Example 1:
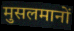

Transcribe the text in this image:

मुसलमानों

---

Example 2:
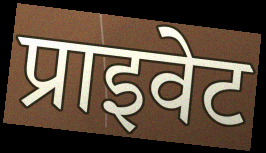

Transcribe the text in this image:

प्राइवेट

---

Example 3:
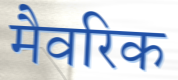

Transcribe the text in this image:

मैवरिक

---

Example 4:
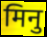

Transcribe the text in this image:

मिनु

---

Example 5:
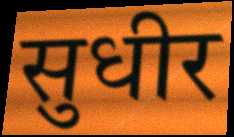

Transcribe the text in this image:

सुधीर